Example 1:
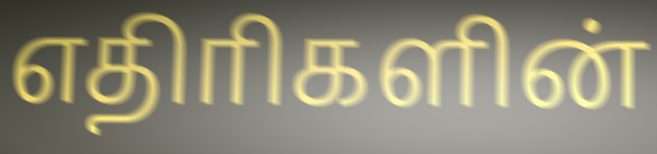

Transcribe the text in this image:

எதிரிகளின்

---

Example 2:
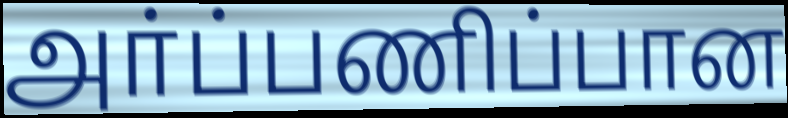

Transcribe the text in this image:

அர்ப்பணிப்பான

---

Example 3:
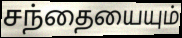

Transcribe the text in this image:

சந்தையையும்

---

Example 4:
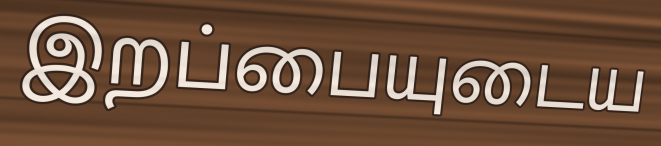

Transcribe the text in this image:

இறப்பையுடைய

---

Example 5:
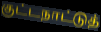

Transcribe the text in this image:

குட்டநாட்டுத்